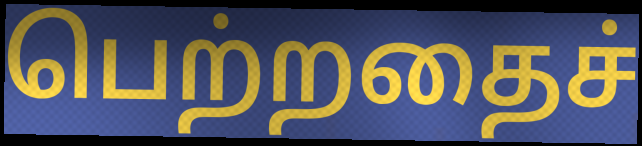
பெற்றதைச்